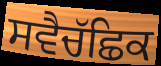
ਸਵੈਚੱਛਿਕ